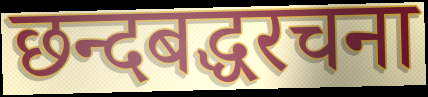
छन्दबद्धरचना